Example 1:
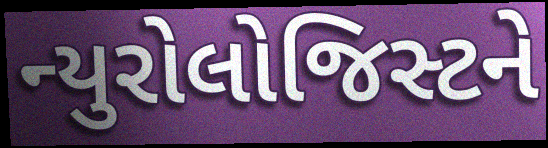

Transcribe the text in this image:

ન્યુરોલોજિસ્ટને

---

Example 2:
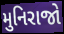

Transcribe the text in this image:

મુનિરાજો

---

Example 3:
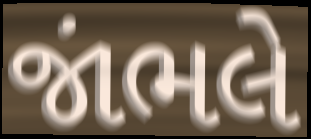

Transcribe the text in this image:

જાંભલે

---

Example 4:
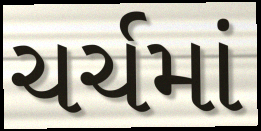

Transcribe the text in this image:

ચર્ચમાં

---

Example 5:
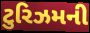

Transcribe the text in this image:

ટુરિઝમની